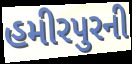
હમીરપુરની